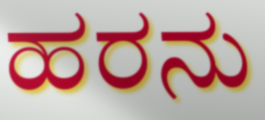
ಹರನು